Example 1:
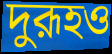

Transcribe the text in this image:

দুরূহও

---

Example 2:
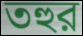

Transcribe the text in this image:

তহুর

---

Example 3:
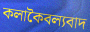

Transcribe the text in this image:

কলাকৈবল্যবাদ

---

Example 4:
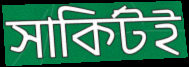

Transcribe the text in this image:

সার্কিটই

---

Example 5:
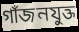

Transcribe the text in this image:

গাঁজনযুক্ত